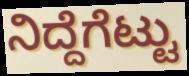
ನಿದ್ದೆಗೆಟ್ಟು